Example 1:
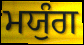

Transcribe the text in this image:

ਮਯੁੰਗ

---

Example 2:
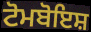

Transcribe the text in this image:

ਟੋਮਬੋਇਸ਼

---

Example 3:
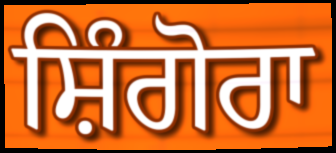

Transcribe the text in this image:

ਸ਼ਿੰਗੋਰਾ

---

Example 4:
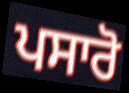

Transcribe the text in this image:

ਪਸਾਰੋ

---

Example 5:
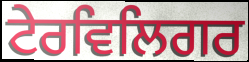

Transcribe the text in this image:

ਟੇਰਵਿਲਿਗਰ